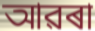
আৱৰা